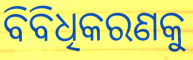
ବିବିଧିକରଣକୁ